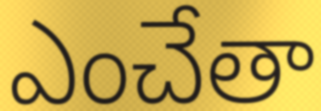
ఎంచేతా